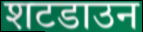
शटडाउन